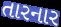
તારનાર